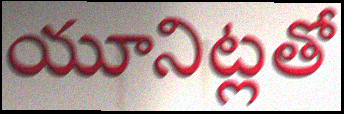
యూనిట్లతో